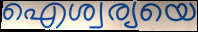
ഐശ്വര്യയെ